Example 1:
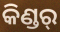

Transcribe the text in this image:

କିଣ୍ଡର୍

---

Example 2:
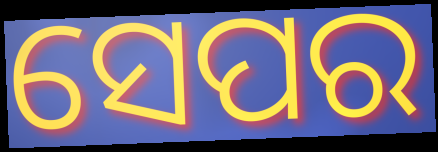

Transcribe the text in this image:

ସେପର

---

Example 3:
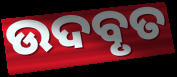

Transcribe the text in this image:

ଉଦବୃତ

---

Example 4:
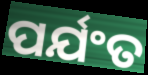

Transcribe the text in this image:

ପର୍ଯଂତ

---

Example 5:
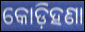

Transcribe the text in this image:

କୋଡ଼ିହଣା